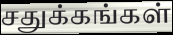
சதுக்கங்கள்